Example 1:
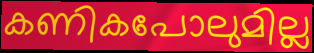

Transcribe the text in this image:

കണികപോലുമില്ല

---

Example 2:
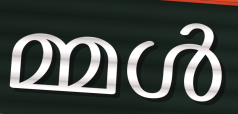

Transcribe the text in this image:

മ്മൾ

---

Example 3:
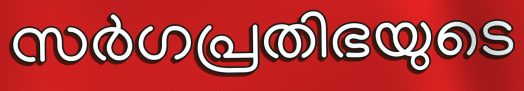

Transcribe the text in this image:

സർഗപ്രതിഭയുടെ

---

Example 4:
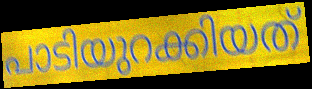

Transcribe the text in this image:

പാടിയുറക്കിയത്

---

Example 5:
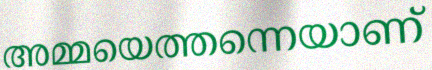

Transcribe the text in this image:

അമ്മയെത്തന്നെയാണ്